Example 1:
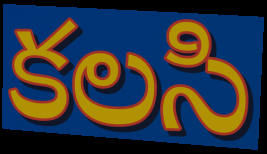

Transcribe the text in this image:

కలసి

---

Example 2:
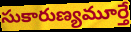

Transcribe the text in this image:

సుకారుణ్యమూర్తే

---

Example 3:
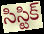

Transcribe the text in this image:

సిస్టిక్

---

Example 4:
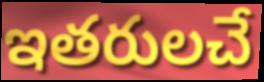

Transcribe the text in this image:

ఇతరులచే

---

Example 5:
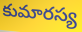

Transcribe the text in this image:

కుమారస్య